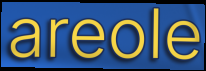
areole